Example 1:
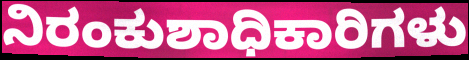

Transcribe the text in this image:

ನಿರಂಕುಶಾಧಿಕಾರಿಗಳು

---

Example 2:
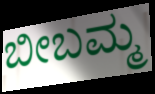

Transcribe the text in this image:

ಬೀಬಮ್ಮ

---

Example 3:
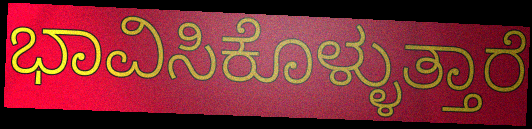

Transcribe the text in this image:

ಭಾವಿಸಿಕೊಳ್ಳುತ್ತಾರೆ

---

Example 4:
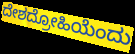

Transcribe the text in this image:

ದೇಶದ್ರೋಹಿಯೆಂದು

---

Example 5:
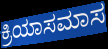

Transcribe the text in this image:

ಕ್ರಿಯಾಸಮಾಸ